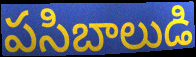
పసిబాలుడి